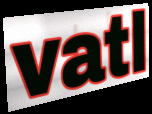
vatl